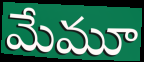
మేమూ